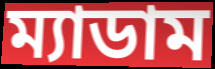
ম্যাডাম